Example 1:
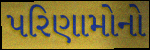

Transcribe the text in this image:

પરિણામોનો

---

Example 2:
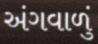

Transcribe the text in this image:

અંગવાળું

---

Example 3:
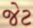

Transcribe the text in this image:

જેટ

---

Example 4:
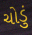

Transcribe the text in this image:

ચોડું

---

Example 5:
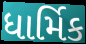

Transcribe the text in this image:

ધાર્મિક